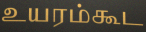
உயரம்கூட